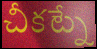
చీకట్నే